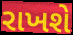
રાખશે